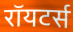
रॉयटर्स